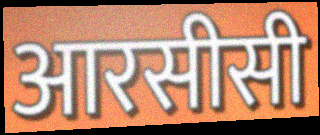
आरसीसी